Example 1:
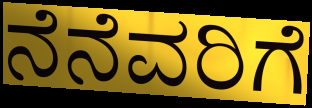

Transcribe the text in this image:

ನೆನೆವರಿಗೆ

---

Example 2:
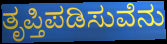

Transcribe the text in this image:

ತೃಪ್ತಿಪಡಿಸುವೆನು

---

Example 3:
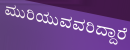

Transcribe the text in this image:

ಮುರಿಯುವವರಿದ್ದಾರೆ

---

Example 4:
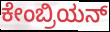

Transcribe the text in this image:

ಕೇಂಬ್ರಿಯನ್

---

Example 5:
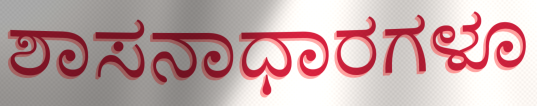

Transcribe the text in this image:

ಶಾಸನಾಧಾರಗಳೂ